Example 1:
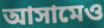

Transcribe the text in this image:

আসামেও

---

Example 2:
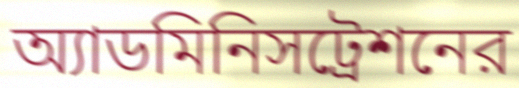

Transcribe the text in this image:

অ্যাডমিনিসট্রেশনের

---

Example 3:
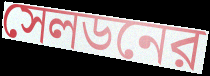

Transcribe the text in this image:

সেলডনের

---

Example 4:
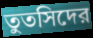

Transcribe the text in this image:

তুতসিদের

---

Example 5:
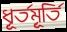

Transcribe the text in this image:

ধূর্তমূর্তি